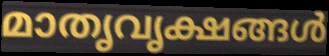
മാതൃവൃക്ഷങ്ങൾ